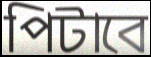
পিটাবে